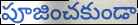
పూజించకుండా